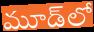
మూడ్‌లో